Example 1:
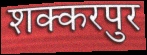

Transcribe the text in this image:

शक्करपुर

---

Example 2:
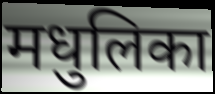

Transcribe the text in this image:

मधुलिका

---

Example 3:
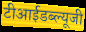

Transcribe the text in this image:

टीआईडब्ल्यूजी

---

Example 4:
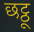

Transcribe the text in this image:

छट्ठू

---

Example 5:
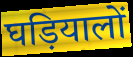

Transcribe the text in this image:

घड़ियालों